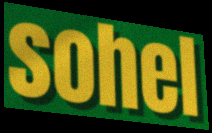
sohel